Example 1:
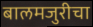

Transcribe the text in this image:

बालमजुरीचा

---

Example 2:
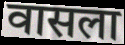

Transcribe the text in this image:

वासला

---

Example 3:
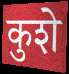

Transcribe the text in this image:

कुशे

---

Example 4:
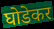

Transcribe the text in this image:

घोडेकर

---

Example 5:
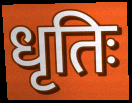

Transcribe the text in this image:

धृतिः